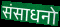
संसाधनो